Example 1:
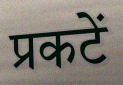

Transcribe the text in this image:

प्रकटें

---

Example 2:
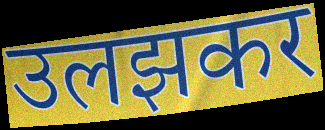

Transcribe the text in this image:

उलझकर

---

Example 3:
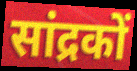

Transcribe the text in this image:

सांद्रकों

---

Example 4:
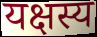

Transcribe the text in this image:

यक्षस्य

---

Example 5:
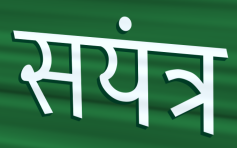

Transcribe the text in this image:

सयंत्र